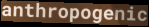
anthropogenic